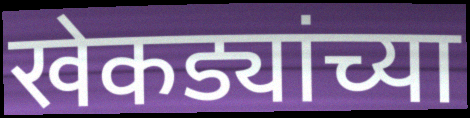
खेकड्यांच्या